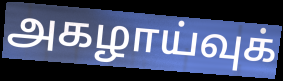
அகழாய்வுக்